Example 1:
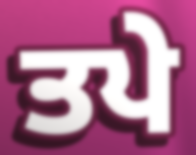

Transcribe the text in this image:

ਤਪੇ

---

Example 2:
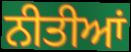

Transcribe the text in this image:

ਨੀਤੀਆਂ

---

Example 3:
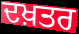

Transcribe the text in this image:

ਦਖ਼ਤਰ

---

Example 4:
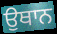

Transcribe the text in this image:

ਉਥਾਨ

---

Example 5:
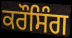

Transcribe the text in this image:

ਕਰੌਸਿੰਗ